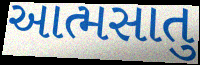
આત્મસાતુ